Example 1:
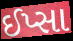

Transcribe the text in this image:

ઈપ્સા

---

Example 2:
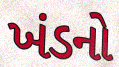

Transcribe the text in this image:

ખંડનો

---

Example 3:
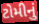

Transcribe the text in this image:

ટોમીનું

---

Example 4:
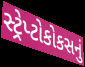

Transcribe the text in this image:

સ્ટ્રેપ્ટોકોકસનું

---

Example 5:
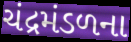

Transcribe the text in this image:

ચંદ્રમંડળના